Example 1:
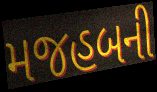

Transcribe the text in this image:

મજહબની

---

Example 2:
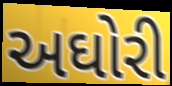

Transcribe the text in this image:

અઘોરી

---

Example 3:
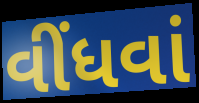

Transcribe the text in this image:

વીંધવાં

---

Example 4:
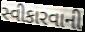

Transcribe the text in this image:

સ્વીકારવાની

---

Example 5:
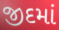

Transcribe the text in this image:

જીદમાં